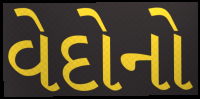
વેદોનો